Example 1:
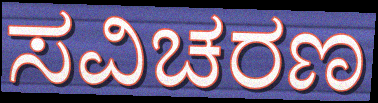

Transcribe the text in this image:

ಸವಿಚರಣ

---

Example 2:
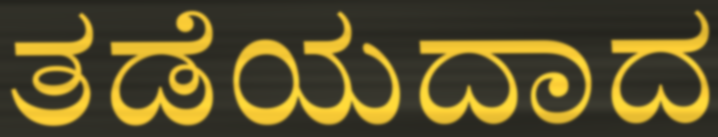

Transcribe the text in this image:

ತಡೆಯದಾದ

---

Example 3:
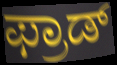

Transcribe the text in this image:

ಫ್ರಾಡ್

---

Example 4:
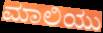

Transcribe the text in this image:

ಮಾಲಿಯು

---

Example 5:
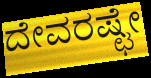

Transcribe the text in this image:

ದೇವರಷ್ಟೇ